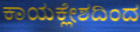
ಕಾಯಕ್ಲೇಶದಿಂದ